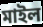
মাইল